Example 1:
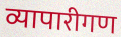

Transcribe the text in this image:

व्यापारीगण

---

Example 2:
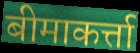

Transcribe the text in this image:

बीमाकर्त्ता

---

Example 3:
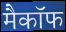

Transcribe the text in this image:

मैकॉफ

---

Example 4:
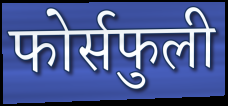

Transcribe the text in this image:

फोर्सफुली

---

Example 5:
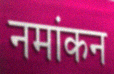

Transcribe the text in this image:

नमांकन